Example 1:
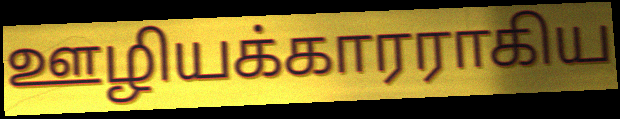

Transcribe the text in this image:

ஊழியக்காரராகிய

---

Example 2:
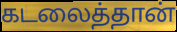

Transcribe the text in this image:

கடலைத்தான்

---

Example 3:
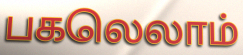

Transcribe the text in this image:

பகலெலாம்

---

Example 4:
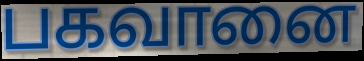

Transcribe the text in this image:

பகவானை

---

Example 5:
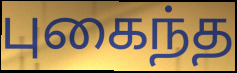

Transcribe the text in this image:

புகைந்த